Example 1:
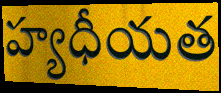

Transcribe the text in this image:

హ్యధీయత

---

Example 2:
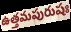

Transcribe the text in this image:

ఉత్తమపురుషః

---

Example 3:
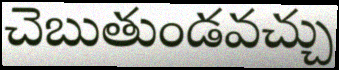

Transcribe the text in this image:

చెబుతుండవచ్చు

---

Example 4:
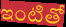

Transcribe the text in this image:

ఇంటితో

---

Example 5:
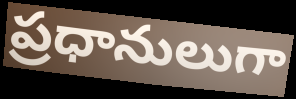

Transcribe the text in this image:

ప్రధానులుగా